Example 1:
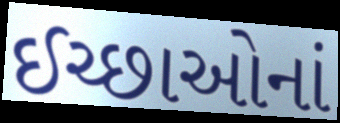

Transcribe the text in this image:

ઈચ્છાઓનાં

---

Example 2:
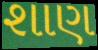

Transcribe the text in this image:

શાણ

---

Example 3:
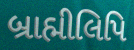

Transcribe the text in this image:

બ્રાહ્મીલિપિ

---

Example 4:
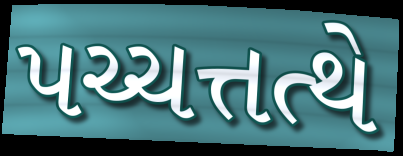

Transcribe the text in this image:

પચ્ચત્તત્થે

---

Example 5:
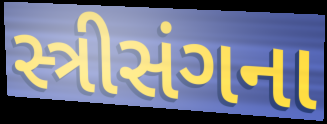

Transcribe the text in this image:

સ્ત્રીસંગના